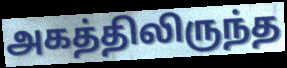
அகத்திலிருந்த